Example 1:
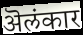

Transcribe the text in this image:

ऄलंकार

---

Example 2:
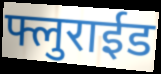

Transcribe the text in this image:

फ्लुराईड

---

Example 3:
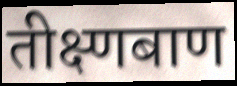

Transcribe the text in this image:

तीक्ष्णबाण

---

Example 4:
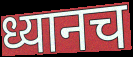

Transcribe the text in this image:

ध्यानच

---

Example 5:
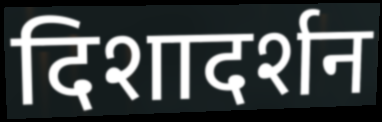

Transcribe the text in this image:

दिशादर्शन